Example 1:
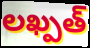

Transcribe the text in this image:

లఖ్పత్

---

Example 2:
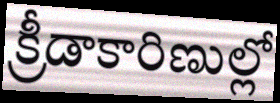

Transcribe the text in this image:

క్రీడాకారిణుల్లో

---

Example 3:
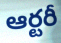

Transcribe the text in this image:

ఆర్టరీ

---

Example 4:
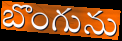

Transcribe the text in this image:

బొంగును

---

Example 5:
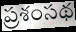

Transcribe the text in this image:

ప్రశంసథ